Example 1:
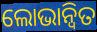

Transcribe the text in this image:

ଲୋଭାନ୍ୱିତ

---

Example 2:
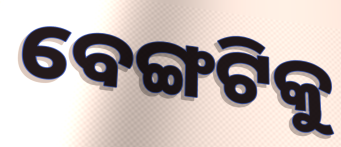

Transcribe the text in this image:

ବେଙ୍ଗଟିକୁ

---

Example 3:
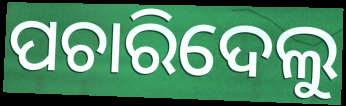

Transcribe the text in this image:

ପଚାରିଦେଲୁ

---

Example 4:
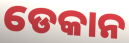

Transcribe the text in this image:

ଡେକାନ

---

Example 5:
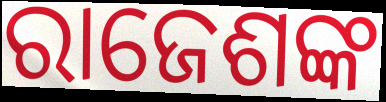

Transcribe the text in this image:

ରାଜେଶଙ୍କ